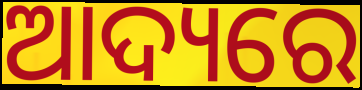
ଆଦ୍ୟରେ